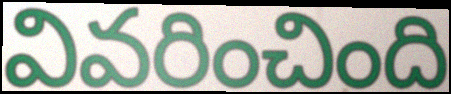
వివరించింది